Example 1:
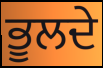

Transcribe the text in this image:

ਭੂਲਦੇ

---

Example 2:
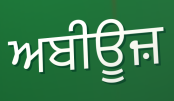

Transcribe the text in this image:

ਅਬੀਊਜ਼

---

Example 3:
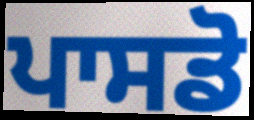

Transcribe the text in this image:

ਪਾਸਡੋ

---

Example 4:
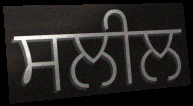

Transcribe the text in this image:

ਸਲੀਲ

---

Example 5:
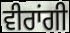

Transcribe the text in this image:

ਵੀਰਾਂਗੀ